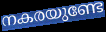
നകരയുണ്ടേ